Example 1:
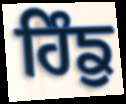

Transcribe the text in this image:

ਹਿੰਙੁ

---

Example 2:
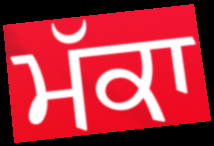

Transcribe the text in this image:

ਮੱਕਾ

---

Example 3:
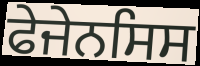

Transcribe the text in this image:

ਫੇਜੇਨਸਿਸ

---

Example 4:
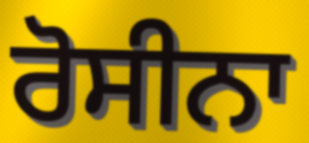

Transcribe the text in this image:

ਰੋਸੀਨਾ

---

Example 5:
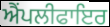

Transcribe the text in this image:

ਐਂਪਲੀਫਾਇਰ